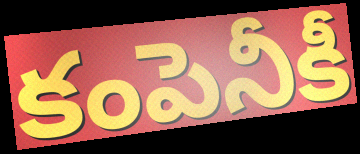
కంపెనీకీ